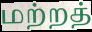
மற்றத்